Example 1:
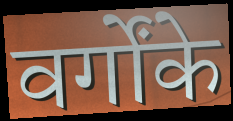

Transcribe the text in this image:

वर्गोंके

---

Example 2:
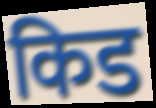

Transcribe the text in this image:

किड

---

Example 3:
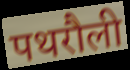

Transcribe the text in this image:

पथरौली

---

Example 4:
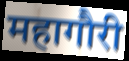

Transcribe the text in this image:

महागौरी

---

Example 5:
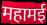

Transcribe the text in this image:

महामई